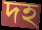
দহ